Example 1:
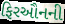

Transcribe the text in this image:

ફિરઔનની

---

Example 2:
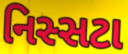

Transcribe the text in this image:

નિસ્સટા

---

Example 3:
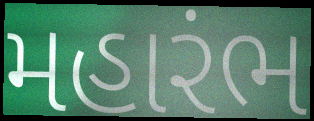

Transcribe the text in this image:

મહારંભ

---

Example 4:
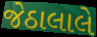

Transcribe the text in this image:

જેઠાલાલે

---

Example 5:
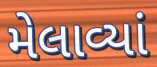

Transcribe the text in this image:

મેલાવ્યાં